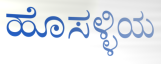
ಹೊಸಳ್ಳಿಯ